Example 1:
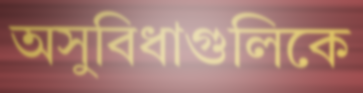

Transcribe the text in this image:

অসুবিধাগুলিকে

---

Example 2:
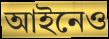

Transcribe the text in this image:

আইনেও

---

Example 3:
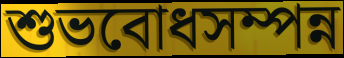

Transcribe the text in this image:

শুভবোধসম্পন্ন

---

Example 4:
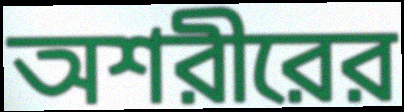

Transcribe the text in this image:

অশরীরের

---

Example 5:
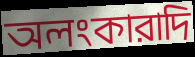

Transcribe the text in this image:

অলংকারাদি